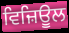
ਵਿਜ਼ਿਊਲ